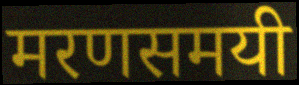
मरणसमयी